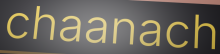
chaanach